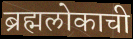
ब्रह्मलोकाची